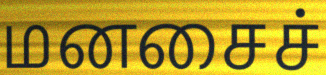
மனசைச்